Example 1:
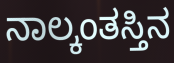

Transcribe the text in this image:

ನಾಲ್ಕಂತಸ್ತಿನ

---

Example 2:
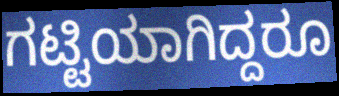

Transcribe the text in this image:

ಗಟ್ಟಿಯಾಗಿದ್ದರೂ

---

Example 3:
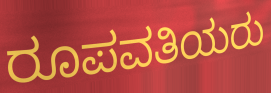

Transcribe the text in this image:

ರೂಪವತಿಯರು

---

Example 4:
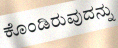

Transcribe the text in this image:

ಕೊಂಡಿರುವುದನ್ನು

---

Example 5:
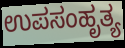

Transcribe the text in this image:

ಉಪಸಂಹೃತ್ಯ